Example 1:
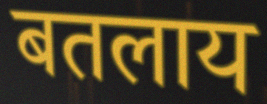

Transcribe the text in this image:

बतलाय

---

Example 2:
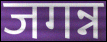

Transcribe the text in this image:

जगन्न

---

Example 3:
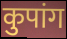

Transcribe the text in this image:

कुपांग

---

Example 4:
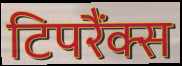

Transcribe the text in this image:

टिपरैंक्स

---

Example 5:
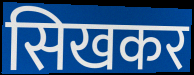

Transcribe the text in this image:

सिखकर